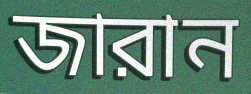
জারান